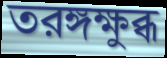
তরঙ্গক্ষুব্ধ